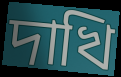
দাখি